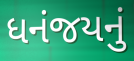
ધનંજયનું